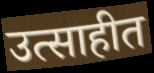
उत्साहीत